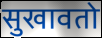
सुखावतो